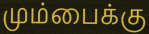
மும்பைக்கு